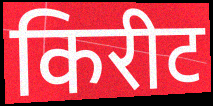
किरीट